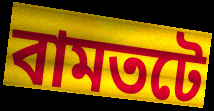
বামতটে